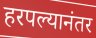
हरपल्यानंतर